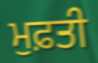
ਮੁਫ਼ਤੀ